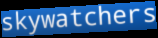
skywatchers